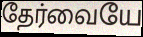
தேர்வையே